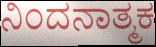
ನಿಂದನಾತ್ಮಕ